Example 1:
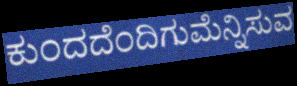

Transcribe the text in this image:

ಕುಂದದೆಂದಿಗುಮೆನ್ನಿಸುವ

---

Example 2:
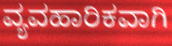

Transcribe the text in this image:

ವ್ಯವಹಾರಿಕವಾಗಿ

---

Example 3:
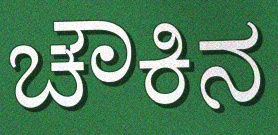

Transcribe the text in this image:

ಚೌಕಿನ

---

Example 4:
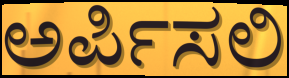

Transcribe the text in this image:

ಅರ್ಪಿಸಲಿ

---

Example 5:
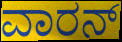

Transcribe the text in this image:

ವಾರನ್